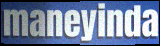
maneyinda